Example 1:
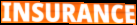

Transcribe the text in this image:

INSURANCE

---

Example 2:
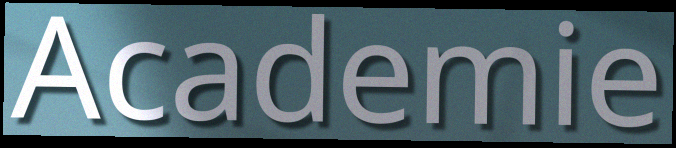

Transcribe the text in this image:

Academie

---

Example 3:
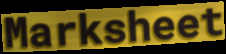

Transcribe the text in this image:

Marksheet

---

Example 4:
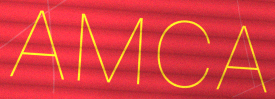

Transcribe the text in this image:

AMCA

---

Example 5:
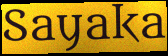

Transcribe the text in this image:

Sayaka